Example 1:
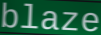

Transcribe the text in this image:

blaze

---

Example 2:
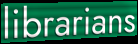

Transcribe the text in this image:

librarians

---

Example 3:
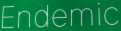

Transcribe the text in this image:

Endemic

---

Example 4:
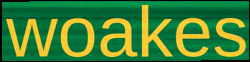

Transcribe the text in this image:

woakes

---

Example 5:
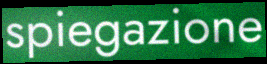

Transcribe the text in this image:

spiegazione